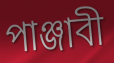
পাঞ্জাবী